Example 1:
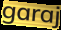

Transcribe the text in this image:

garaj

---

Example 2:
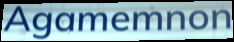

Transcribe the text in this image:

Agamemnon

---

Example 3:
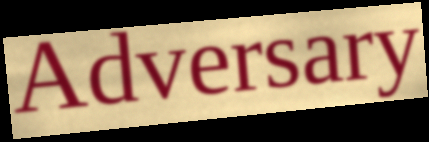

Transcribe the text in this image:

Adversary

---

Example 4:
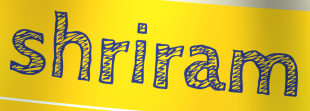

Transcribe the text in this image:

shriram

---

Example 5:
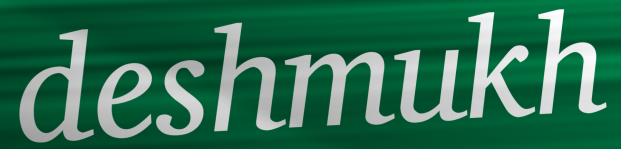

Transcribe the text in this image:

deshmukh